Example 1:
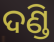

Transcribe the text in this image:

ଦଣ୍ଡି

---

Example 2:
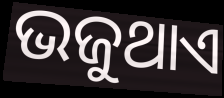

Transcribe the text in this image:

ଭଜୁଥାଏ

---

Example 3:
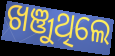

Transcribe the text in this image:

ଖଞ୍ଜୁଥିଲେ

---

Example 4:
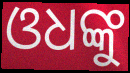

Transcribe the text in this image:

ଓଧଙ୍କୁ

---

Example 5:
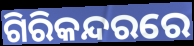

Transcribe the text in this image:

ଗିରିକନ୍ଦରରେ